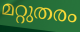
മറ്റുതരം